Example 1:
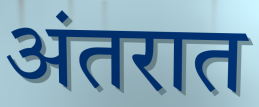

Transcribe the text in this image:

अंतरात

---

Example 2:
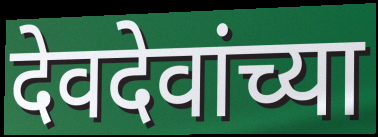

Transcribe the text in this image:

देवदेवांच्या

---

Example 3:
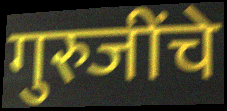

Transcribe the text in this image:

गुरुजींचे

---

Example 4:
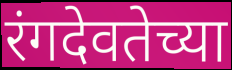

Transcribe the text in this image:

रंगदेवतेच्या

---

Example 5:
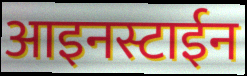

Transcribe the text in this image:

आइनस्टाईन